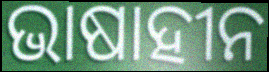
ଭାଷାହୀନ